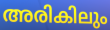
അരികിലും